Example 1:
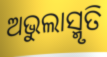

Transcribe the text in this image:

ଅଭୁଲାସ୍ମୃତି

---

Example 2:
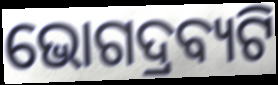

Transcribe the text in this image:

ଭୋଗଦ୍ରବ୍ୟଟି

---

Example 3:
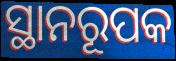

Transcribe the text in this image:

ସ୍ଥାନରୂପକ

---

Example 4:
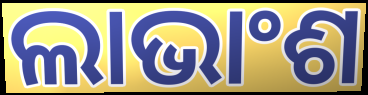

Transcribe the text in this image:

ଲାଭାଂଶ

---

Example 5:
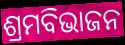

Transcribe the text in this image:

ଶ୍ରମବିଭାଜନ